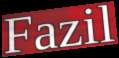
Fazil